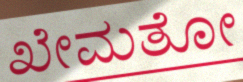
ಖೇಮತೋ